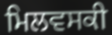
ਮਿਲਵਸਕੀ